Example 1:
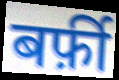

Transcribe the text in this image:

बर्फ़ी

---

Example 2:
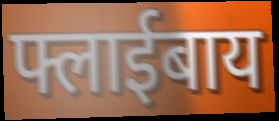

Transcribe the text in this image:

फ्लाईबाय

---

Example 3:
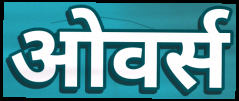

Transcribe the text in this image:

ओवर्स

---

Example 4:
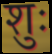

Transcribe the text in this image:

शुः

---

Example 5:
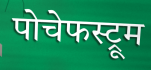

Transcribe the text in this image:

पोचेफस्ट्रूम